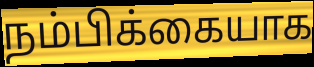
நம்பிக்கையாக